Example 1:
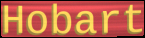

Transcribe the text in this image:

Hobart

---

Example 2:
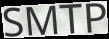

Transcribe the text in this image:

SMTP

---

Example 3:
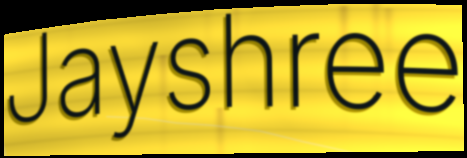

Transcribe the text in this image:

Jayshree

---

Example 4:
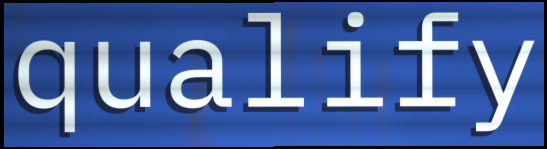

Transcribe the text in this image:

qualify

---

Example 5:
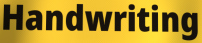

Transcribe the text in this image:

Handwriting